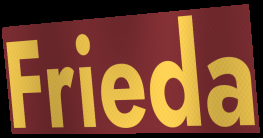
Frieda